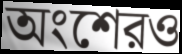
অংশেরও